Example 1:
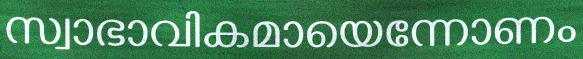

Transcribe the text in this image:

സ്വാഭാവികമായെന്നോണം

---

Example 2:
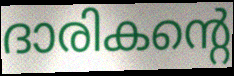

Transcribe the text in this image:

ദാരികന്റെ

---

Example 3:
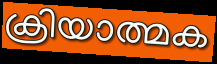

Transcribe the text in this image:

ക്രിയാത്മക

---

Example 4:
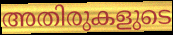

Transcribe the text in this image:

അതിരുകളുടെ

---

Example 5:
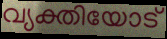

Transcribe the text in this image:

വ്യക്തിയോട്